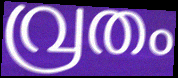
വ്രതം